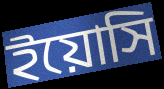
ইয়োসি